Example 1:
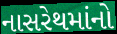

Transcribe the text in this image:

નાસરેથમાંનો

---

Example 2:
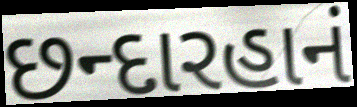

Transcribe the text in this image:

છન્દારહાનં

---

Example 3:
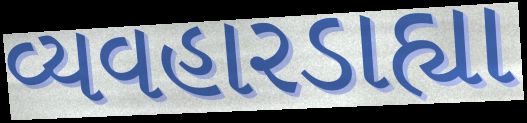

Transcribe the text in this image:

વ્યવહારડાહ્યા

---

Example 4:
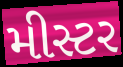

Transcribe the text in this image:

મીસ્ટર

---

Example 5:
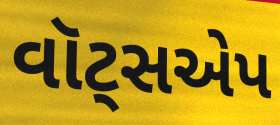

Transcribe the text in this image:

વૉટ્સએપ